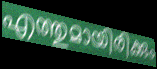
എത്തുമായിരിക്കും